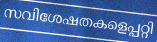
സവിശേഷതകളെപ്പറ്റി